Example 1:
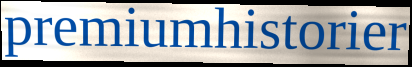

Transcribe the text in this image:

premiumhistorier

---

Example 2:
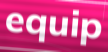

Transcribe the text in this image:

equip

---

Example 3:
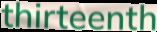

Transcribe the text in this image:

thirteenth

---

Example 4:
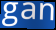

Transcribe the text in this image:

gan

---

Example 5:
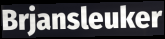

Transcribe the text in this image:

Brjansleuker